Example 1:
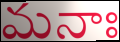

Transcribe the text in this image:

మనాః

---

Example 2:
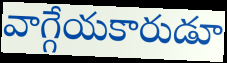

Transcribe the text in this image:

వాగ్గేయకారుడూ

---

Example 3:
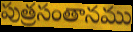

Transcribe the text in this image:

పుత్రసంతానము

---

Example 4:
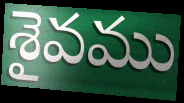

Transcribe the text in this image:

శైవము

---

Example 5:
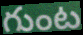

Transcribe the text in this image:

గుంట